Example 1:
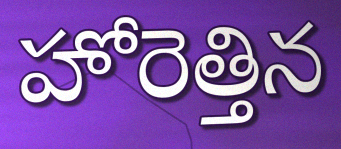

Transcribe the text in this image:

హోరెత్తిన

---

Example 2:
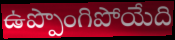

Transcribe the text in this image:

ఉప్పొంగిపోయేది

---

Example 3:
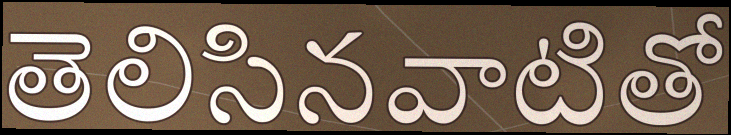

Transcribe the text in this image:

తెలిసినవాటితో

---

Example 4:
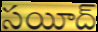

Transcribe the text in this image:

సయీద్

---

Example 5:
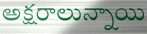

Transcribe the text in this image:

అక్షరాలున్నాయి